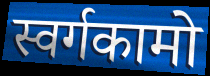
स्वर्गकामो